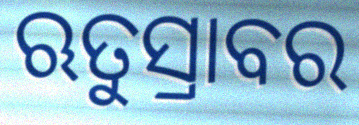
ଋତୁସ୍ରାବର